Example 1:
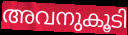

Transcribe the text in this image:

അവനുകൂടി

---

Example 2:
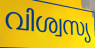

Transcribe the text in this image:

വിശ്വസ്യ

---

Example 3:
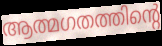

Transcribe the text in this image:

ആത്മഗതത്തിന്റെ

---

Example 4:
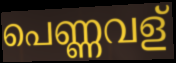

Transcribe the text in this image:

പെണ്ണവള്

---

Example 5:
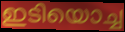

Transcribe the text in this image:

ഇടിയൊച്ച